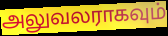
அலுவலராகவும்